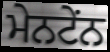
ਮੇਨਟੇਂਨ